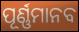
ପୂର୍ଣ୍ଣମାନବ